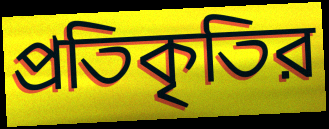
প্রতিকৃতির